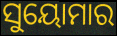
ସୁୟୋମାର